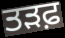
ਤੜਫ਼